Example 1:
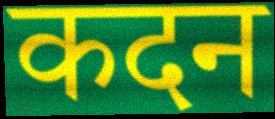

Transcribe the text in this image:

कदन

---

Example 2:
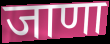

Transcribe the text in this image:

जाणा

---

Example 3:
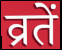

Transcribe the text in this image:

व्रतें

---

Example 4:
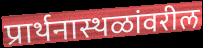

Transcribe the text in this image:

प्रार्थनास्थळांवरील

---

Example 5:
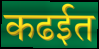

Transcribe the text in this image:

कढईत